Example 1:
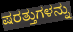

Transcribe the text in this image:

ಷರತ್ತುಗಳನ್ನು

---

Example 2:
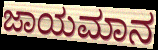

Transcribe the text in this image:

ಜಾಯಮಾನ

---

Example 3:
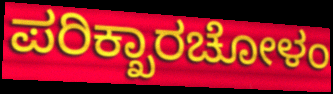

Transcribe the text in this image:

ಪರಿಕ್ಖಾರಚೋಳಂ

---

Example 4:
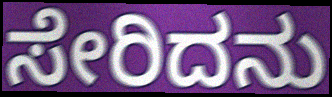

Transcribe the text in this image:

ಸೇರಿದನು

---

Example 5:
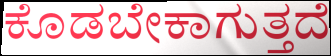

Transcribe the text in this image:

ಕೊಡಬೇಕಾಗುತ್ತದೆ